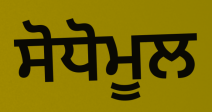
ਸੋਧੋਮੂਲ